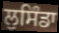
ਲੁਸਿੰਡਾ